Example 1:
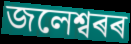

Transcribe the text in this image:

জলেশ্বৰৰ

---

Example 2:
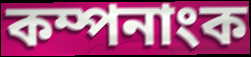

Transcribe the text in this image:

কম্পনাংক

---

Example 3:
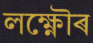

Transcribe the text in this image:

লক্ষ্ণৌৰ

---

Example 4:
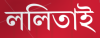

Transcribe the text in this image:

ললিতাই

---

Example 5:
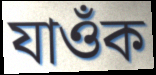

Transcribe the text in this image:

যাওঁক